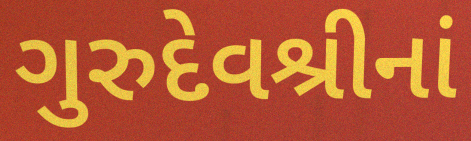
ગુરુદેવશ્રીનાં